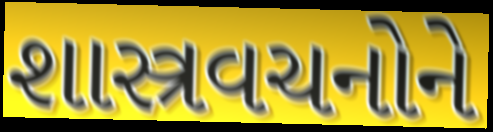
શાસ્ત્રવચનોને